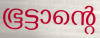
ഭൂട്ടാന്റെ